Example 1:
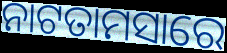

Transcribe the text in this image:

ନାଟତାମସାରେ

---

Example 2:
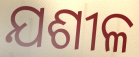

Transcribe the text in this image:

ଯଶୀଳ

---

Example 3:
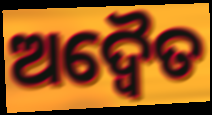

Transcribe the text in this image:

ଅଦ୍ୱୈତ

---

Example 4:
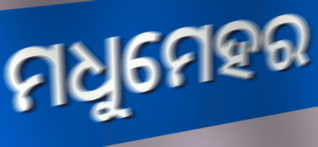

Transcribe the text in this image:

ମଧୁମେହର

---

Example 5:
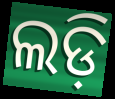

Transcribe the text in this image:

ଲଡ଼ି